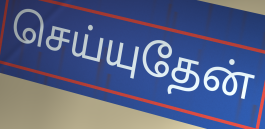
செய்யுதேன்